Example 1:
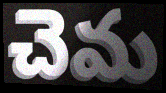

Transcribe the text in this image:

చెమ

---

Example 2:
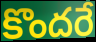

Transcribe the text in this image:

కొందరే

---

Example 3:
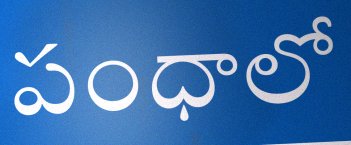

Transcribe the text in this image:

పంధాలో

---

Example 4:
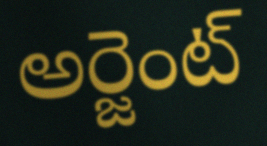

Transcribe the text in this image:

అర్జెంట్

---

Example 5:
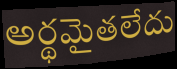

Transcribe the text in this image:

అర్థమైతలేదు